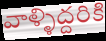
వాళ్ళిద్దరికి